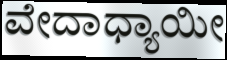
ವೇದಾಧ್ಯಾಯೀ